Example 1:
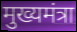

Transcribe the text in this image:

मुख्यमंत्रा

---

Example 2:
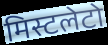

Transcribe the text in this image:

मिस्टलेटो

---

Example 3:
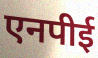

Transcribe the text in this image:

एनपीई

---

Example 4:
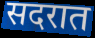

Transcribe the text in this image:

सदरात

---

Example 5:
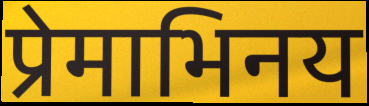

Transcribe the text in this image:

प्रेमाभिनय